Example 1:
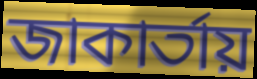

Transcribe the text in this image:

জাকার্তায়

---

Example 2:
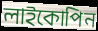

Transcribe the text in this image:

লাইকোপিন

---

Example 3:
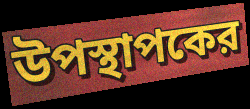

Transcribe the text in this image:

উপস্থাপকের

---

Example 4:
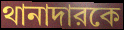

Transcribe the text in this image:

থানাদারকে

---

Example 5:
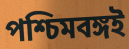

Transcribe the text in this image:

পশ্চিমবঙ্গই